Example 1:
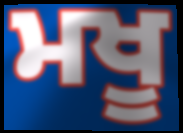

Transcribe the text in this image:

ਮਖੂ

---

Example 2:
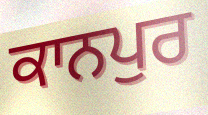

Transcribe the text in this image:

ਕਾਨਪੁਰ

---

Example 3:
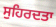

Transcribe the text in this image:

ਸੁਹਿਰਦਤਾ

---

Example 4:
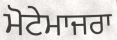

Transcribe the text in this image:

ਮੋਟੇਮਾਜਰਾ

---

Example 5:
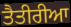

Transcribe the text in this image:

ਤੈਤੀਰੀਆ